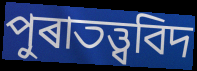
পুৰাতত্ত্ববিদ